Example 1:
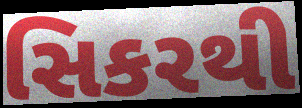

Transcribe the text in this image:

સિકરથી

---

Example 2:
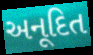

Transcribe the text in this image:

અનૂદિત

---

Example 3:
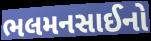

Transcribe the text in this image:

ભલમનસાઈનો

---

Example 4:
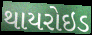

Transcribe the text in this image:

થાયરોઇડ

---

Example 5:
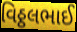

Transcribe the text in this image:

વિઠ્ઠલભાઈ